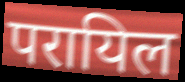
परायिल